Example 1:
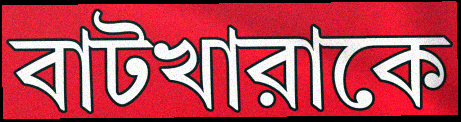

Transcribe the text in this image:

বাটখারাকে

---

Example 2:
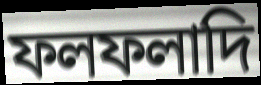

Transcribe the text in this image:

ফলফলাদি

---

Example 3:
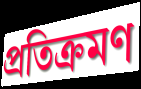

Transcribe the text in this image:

প্রতিক্রমণ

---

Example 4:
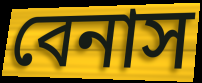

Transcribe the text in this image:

বেনাস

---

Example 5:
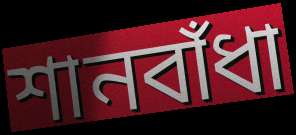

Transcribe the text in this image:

শানবাঁধা